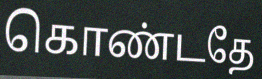
கொண்டதே